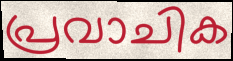
പ്രവാചിക